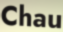
Chau